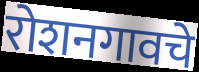
रोशनगावचे